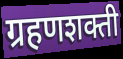
ग्रहणशक्ती